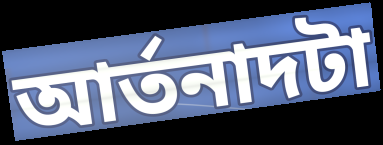
আর্তনাদটা